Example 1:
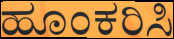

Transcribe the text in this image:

ಹೂಂಕರಿಸಿ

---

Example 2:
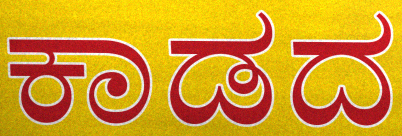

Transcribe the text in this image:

ಕಾಡದ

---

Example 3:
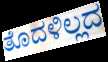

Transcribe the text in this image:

ತೊದಳಿಲ್ಲದ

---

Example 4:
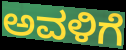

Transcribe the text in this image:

ಅವಳಿಗೆ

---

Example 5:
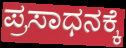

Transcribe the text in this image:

ಪ್ರಸಾಧನಕ್ಕೆ